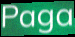
Paga